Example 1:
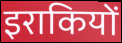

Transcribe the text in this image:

इराकियों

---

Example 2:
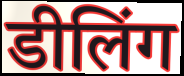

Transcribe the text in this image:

डीलिंग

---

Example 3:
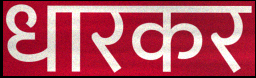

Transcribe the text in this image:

धारकर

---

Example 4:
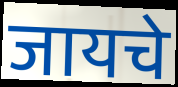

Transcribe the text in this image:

जायचे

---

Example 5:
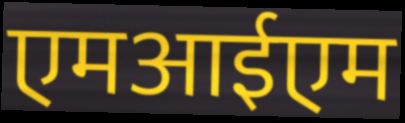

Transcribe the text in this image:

एमआईएम